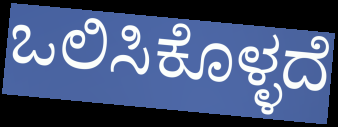
ಒಲಿಸಿಕೊಳ್ಳದೆ